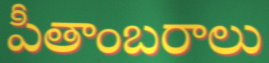
పీతాంబరాలు